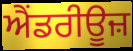
ਐਂਡਰੀਊਜ਼